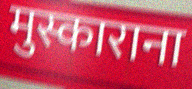
मुस्काराना